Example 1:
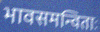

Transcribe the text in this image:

भावसमन्विताः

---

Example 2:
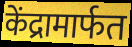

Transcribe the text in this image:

केंद्रामार्फत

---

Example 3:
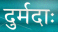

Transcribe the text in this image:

दुर्मदाः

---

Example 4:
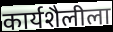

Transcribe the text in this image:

कार्यशैलीला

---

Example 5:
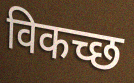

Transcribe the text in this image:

विकच्छ